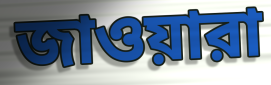
জাওয়ারা